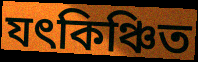
যৎকিঞ্চিত